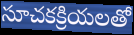
సూచకక్రియలతో